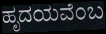
ಹೃದಯವೆಂಬ